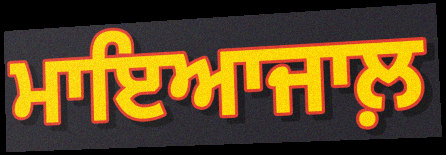
ਮਾਇਆਜਾਲ਼